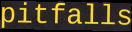
pitfalls